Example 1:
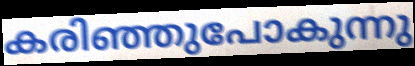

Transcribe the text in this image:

കരിഞ്ഞുപോകുന്നു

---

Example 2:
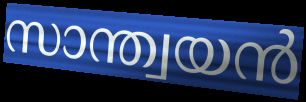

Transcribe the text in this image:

സാന്ത്വയൻ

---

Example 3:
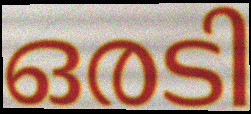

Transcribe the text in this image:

ഒരടി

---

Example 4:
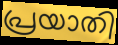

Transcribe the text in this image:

പ്രയാതി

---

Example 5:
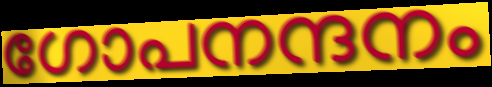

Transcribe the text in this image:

ഗോപനന്ദനം